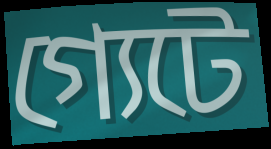
গ্যেটে